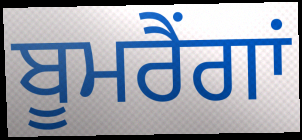
ਬੂਮਰੈਂਗਾਂ